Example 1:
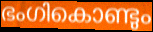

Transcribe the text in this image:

ഭംഗികൊണ്ടും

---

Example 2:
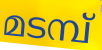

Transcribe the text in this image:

മടമ്പ്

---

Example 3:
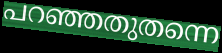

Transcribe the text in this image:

പറഞ്ഞതുതന്നെ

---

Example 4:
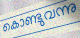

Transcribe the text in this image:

കൊണ്ടുവന്നു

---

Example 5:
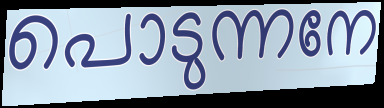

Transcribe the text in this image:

പൊടുന്നനേ